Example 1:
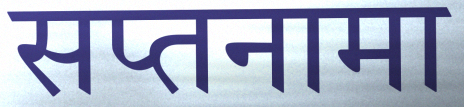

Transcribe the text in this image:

सप्तनामा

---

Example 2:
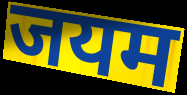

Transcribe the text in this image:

जयम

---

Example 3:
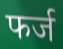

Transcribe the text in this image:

फर्ज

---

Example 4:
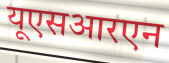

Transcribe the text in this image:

यूएसआरएन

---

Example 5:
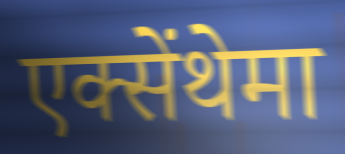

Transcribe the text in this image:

एक्सेंथेमा